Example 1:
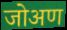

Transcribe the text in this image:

जोअण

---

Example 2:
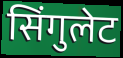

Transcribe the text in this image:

सिंगुलेट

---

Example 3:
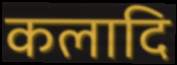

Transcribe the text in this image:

कलादि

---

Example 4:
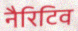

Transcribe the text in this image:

नैरिटिव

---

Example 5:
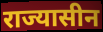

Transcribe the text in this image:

राज्यासीन